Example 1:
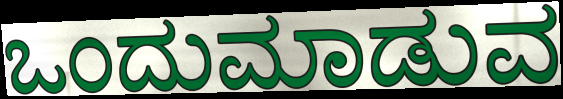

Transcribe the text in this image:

ಒಂದುಮಾಡುವ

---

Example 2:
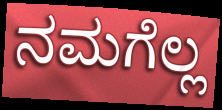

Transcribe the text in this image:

ನಮಗೆಲ್ಲ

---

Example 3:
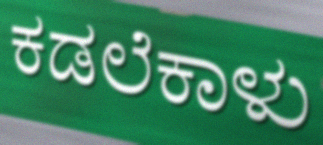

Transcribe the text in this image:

ಕಡಲೆಕಾಳು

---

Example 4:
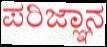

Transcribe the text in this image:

ಪರಿಜ್ಞಾನ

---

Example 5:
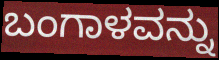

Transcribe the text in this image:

ಬಂಗಾಳವನ್ನು